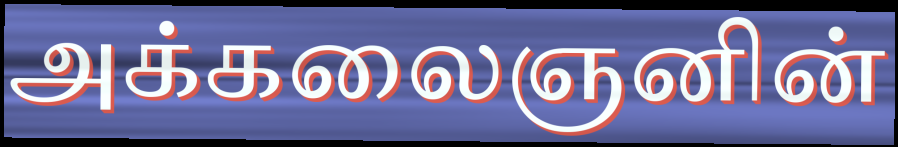
அக்கலைஞனின்